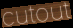
cutout